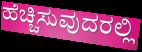
ಹೆಚ್ಚಿಸುವುದರಲ್ಲಿ